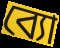
ব্যো